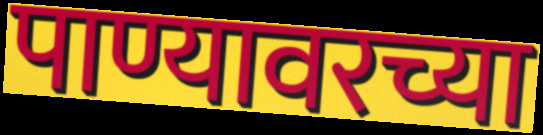
पाण्यावरच्या